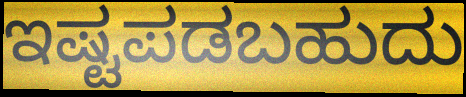
ಇಷ್ಟಪಡಬಹುದು